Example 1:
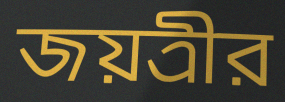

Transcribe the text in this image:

জয়ত্রীর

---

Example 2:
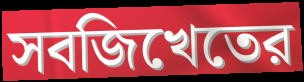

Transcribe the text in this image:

সবজিখেতের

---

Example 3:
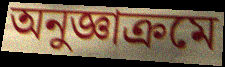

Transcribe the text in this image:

অনুজ্ঞাক্রমে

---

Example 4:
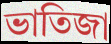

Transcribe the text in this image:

ভাতিজা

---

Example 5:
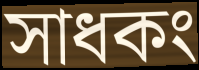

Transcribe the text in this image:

সাধকং